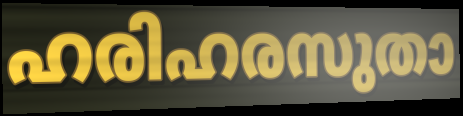
ഹരിഹരസുതാ